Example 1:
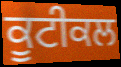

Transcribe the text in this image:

ਕੂਟੀਕਲ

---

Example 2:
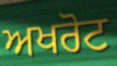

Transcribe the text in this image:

ਅਖਰੋਟ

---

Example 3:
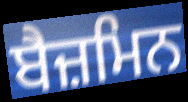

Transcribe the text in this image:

ਬੈਜ਼ਮਿਨ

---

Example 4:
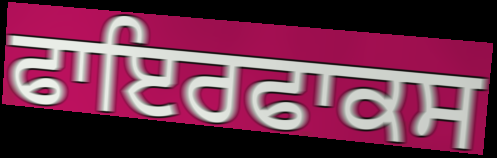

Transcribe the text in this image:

ਫਾਇਰਫਾਕਸ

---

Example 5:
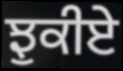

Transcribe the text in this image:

ਝੁਕੀਏ